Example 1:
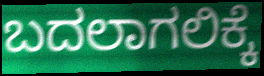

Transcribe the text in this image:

ಬದಲಾಗಲಿಕ್ಕೆ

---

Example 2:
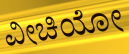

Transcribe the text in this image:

ವೀಚಿಯೋ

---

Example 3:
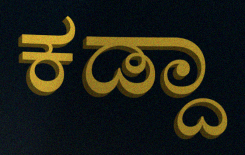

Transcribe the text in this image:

ಕಡ್ದಾ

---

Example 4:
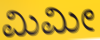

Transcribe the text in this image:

ಮಿಮೀ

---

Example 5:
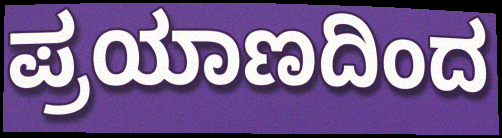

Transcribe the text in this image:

ಪ್ರಯಾಣದಿಂದ